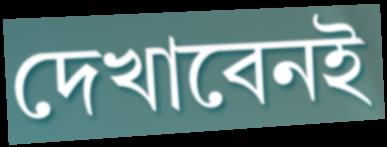
দেখাবেনই